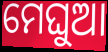
ମେଘୁଆ